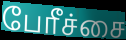
பேரீச்சை